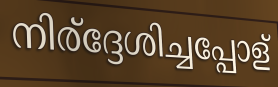
നിര്ദ്ദേശിച്ചപ്പോള്